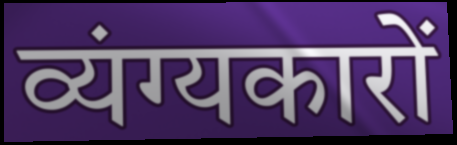
व्‍यंग्‍यकारों